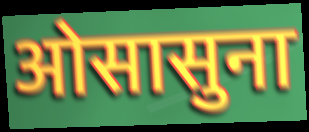
ओसासुना